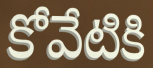
కోవేటికి